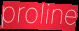
proline